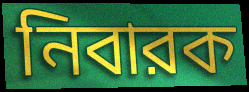
নিবারক